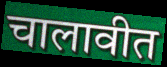
चालावीत